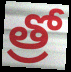
త్రో